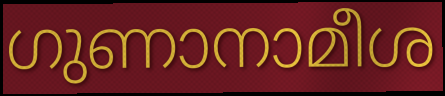
ഗുണാനാമീശ